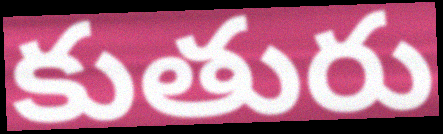
కుతురు